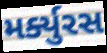
મર્ક્યુરસ